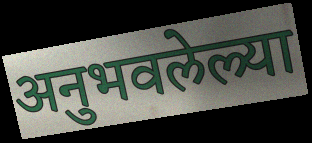
अनुभवलेल्या